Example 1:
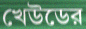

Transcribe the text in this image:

খেউডের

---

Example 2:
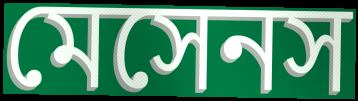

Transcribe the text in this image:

মেসেনস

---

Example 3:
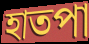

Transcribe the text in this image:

হাতপা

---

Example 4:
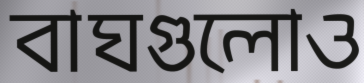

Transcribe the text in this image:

বাঘগুলোও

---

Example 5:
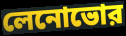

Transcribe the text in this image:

লেনোভোর